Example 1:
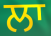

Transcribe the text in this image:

ਲਾ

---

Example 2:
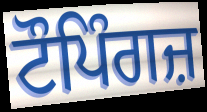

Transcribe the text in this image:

ਟੌਪਿੰਗਜ਼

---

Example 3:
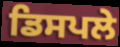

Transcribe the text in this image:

ਡਿਸਪਲੇ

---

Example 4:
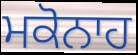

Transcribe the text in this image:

ਮਕੋਨਾਹ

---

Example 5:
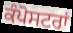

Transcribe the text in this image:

ਕੰਪੋਸਟਰਾਂ